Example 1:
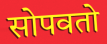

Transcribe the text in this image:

सोपवतो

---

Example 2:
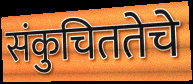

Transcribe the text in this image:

संकुचिततेचे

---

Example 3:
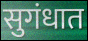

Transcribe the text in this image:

सुगंधात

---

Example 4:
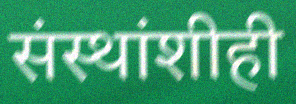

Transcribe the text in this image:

संस्थांशीही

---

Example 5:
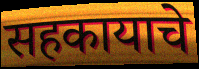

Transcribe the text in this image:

सहकायाचे